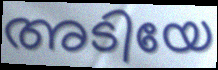
അടിയേ